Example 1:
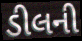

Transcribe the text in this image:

ડીલની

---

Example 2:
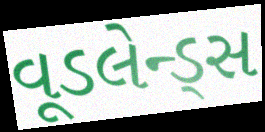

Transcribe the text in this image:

વૂડલેન્ડ્સ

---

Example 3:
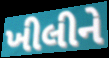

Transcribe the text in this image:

ખીલીને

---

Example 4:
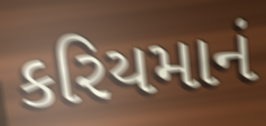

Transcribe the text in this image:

કરિયમાનં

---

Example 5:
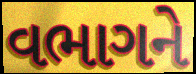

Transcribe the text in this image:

વભાગને